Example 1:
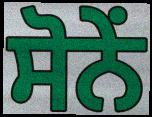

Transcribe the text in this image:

ਸੋਨੇਂ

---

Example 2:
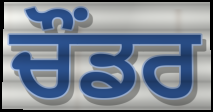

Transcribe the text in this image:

ਚੌਂਡਰ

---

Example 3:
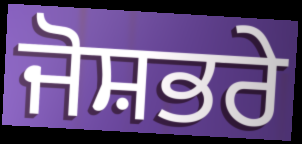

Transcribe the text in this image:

ਜੋਸ਼ਭਰੇ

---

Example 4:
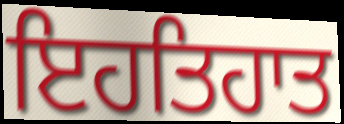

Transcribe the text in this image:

ਇਹਤਿਹਾਤ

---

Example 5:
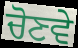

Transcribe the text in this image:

ਚੋਣਵੇ